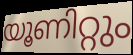
യൂണിറ്റും